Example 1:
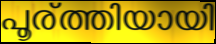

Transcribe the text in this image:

പൂര്ത്തിയായി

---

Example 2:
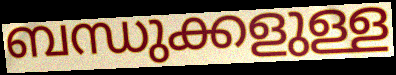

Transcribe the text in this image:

ബന്ധുക്കളുള്ള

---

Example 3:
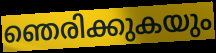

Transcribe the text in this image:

ഞെരിക്കുകയും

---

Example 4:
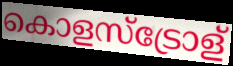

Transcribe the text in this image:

കൊളസ്ട്രോള്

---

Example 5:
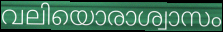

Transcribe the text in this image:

വലിയൊരാശ്വാസം